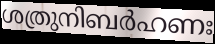
ശത്രുനിബർഹണഃ